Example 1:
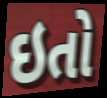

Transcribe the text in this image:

ઇતો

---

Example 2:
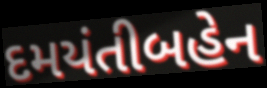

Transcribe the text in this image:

દમયંતીબહેન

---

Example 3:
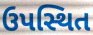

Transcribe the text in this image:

ઉપસ્થિત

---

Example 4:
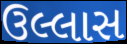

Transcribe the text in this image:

ઉલ્લાસ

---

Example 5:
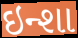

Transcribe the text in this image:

ઇન્શા